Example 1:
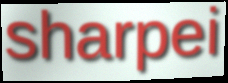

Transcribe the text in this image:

sharpei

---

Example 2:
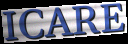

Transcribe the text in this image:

ICARE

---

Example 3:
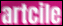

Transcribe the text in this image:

artcile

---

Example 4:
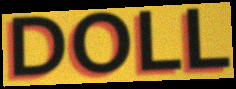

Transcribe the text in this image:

DOLL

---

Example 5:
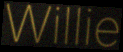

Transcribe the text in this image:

Willie